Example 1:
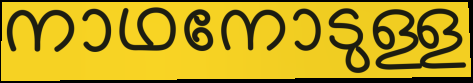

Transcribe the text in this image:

നാഥനോടുള്ള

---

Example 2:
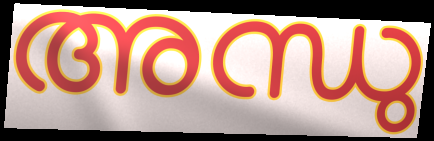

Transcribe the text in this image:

അന്ധു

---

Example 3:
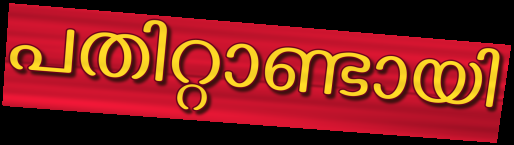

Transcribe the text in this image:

പതിറ്റാണ്ടായി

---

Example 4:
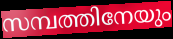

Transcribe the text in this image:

സമ്പത്തിനേയും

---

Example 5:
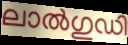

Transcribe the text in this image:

ലാൽഗുഡി